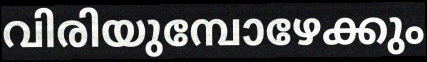
വിരിയുമ്പോഴേക്കും